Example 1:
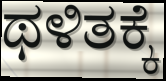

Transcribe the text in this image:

ಥಳಿತಕ್ಕೆ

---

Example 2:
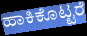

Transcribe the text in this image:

ಹಾಕಿಕೊಟ್ಟರೆ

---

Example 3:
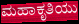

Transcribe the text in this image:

ಮಹಾಕೃತಿಯು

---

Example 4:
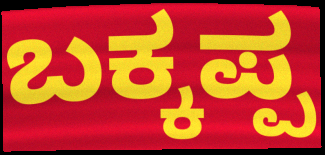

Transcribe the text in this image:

ಬಕ್ಕಪ್ಪ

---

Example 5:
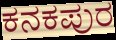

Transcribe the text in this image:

ಕನಕಪುರ